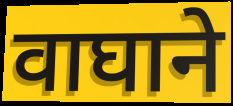
वाघाने